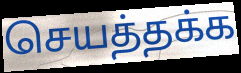
செயத்தக்க